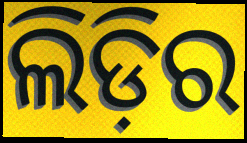
ଲିଡ଼ିର